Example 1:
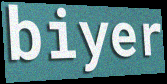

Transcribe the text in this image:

biyer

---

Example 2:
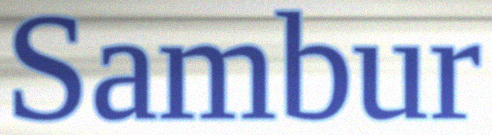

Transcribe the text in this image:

Sambur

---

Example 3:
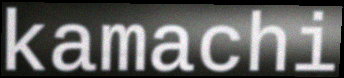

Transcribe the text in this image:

kamachi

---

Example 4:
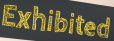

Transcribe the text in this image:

Exhibited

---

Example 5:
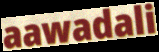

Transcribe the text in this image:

aawadali